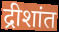
द्रीशांत